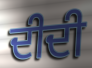
ਦੀਦੀ